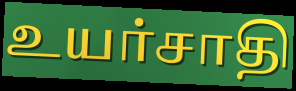
உயர்சாதி